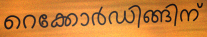
റെക്കോർഡിങ്ങിന്